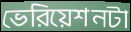
ভেরিয়েশনটা